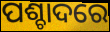
ପଶ୍ଚାଦରେ